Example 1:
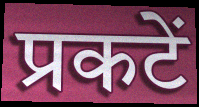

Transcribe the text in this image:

प्रकटें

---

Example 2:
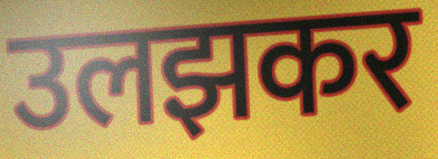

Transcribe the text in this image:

उलझकर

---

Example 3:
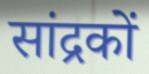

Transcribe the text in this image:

सांद्रकों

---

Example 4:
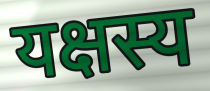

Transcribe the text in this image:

यक्षस्य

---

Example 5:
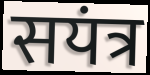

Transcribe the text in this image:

सयंत्र